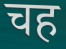
चह